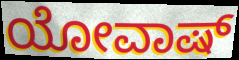
ಯೋವಾಷ್